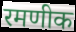
रमणीक